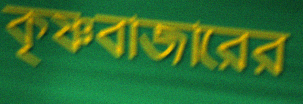
কৃষ্ণবাজারের